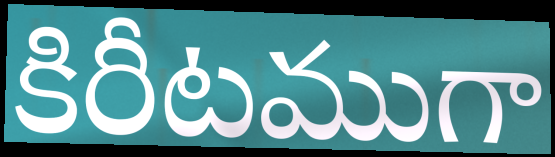
కిరీటముగా